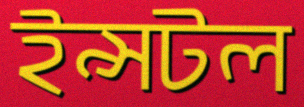
ইন্সটল